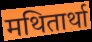
मथितार्था